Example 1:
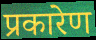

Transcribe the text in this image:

प्रकारेण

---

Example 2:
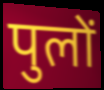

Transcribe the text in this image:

पुलों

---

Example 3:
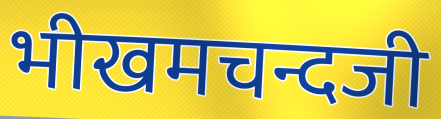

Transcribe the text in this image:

भीखमचन्दजी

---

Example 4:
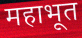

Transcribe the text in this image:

महाभूत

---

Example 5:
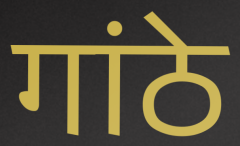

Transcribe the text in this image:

गांठे